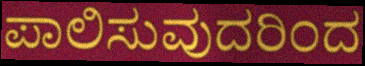
ಪಾಲಿಸುವುದರಿಂದ